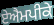
ਏਐਮਪੀਕੇ